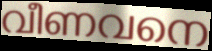
വീണവനെ